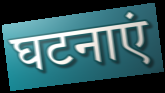
घटनाएं